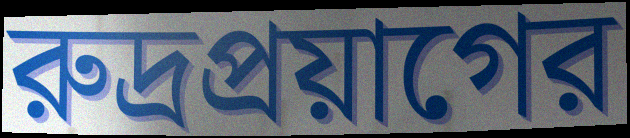
রুদ্রপ্রয়াগের